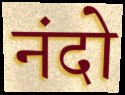
नंदो